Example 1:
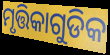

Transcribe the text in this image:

ମୃତ୍ତିକାଗୁଡିକ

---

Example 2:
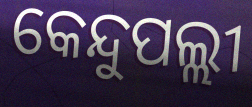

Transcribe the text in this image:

କେନ୍ଦୁପଲ୍ଲୀ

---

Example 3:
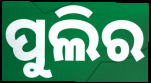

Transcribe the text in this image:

ପୁଲିର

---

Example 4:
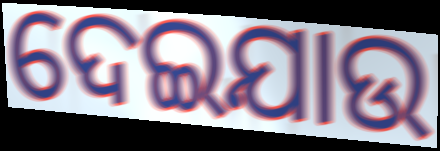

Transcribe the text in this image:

ଦେଇଯାଉ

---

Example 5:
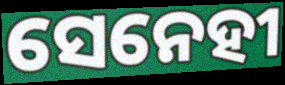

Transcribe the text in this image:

ସେନେହୀ